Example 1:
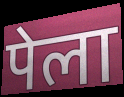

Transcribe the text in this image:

पेला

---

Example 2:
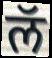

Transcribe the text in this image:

लॅ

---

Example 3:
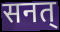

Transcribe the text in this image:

सनत्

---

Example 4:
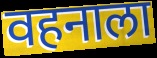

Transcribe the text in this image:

वहनाला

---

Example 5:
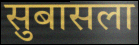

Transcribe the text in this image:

सुबासला